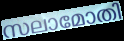
സലാമോതി